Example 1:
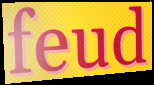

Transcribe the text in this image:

feud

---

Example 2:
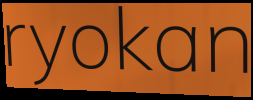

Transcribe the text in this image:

ryokan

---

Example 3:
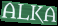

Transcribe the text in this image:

ALKA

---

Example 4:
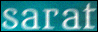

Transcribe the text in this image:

sarat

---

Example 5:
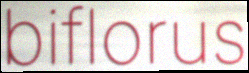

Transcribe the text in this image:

biflorus